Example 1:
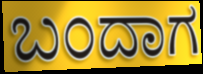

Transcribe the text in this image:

ಬಂದಾಗ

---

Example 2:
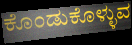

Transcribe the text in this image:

ಕೊಂಡುಕೊಳ್ಳುವ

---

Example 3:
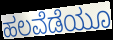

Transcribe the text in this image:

ಹಲವೆಡೆಯೂ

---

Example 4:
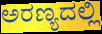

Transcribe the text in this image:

ಅರಣ್ಯದಲ್ಲಿ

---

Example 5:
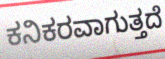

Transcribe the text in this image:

ಕನಿಕರವಾಗುತ್ತದೆ